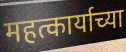
महत्कार्याच्या